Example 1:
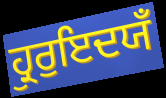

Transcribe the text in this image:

ਹ੍ਰੁਰੁਇਦਯਁ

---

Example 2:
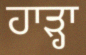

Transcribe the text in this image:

ਹਾੜ੍ਹਾ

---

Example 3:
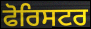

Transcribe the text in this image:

ਫੋਰਿਸਟਰ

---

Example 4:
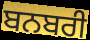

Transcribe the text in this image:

ਬਨਬਰੀ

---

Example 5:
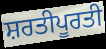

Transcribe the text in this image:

ਸ਼ਰਤੀਪੂਰਤੀ